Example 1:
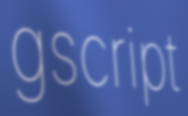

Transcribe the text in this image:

gscript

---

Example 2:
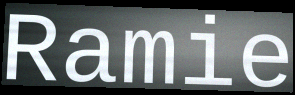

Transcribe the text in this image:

Ramie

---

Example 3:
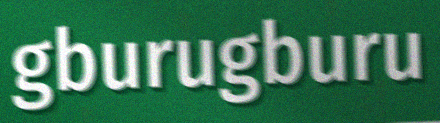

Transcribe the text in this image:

gburugburu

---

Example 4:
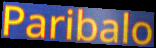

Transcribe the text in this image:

Paribalo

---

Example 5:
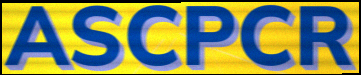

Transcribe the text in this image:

ASCPCR